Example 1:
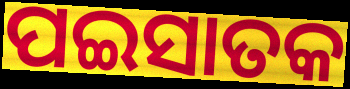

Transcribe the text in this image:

ପଇସାତକ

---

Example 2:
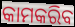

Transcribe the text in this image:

କାମକରିବ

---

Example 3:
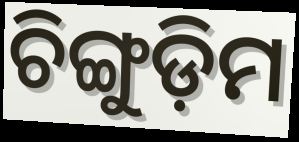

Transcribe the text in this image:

ଚିଙ୍ଗୁଡ଼ିମ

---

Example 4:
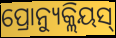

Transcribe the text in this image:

ପ୍ରୋନ୍ୟୁକ୍ଲିୟସ୍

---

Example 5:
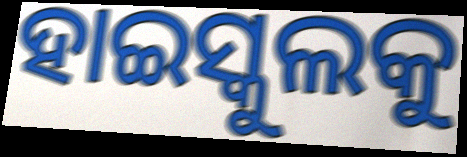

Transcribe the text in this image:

ହାଇସ୍କୁଲକୁ